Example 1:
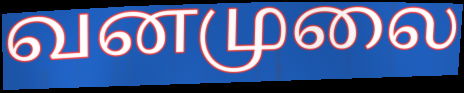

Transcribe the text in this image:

வனமுலை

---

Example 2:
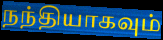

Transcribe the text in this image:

நந்தியாகவும்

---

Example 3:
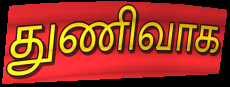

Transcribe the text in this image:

துணிவாக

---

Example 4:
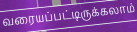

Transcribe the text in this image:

வரையப்பட்டிருக்கலாம்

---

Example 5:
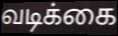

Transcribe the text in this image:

வடிக்கை